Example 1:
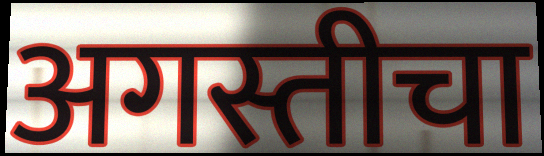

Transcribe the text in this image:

अगस्तीचा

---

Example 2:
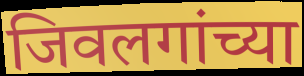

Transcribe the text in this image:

जिवलगांच्या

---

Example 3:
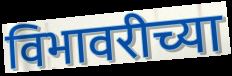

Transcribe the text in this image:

विभावरीच्या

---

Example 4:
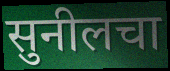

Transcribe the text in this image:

सुनीलचा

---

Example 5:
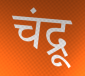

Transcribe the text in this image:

चंद्रू